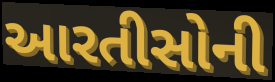
આરતીસોની